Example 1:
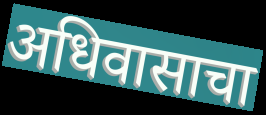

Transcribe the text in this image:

अधिवासाचा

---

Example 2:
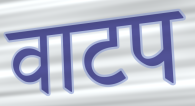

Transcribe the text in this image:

वाटप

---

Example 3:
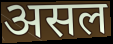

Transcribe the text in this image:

असल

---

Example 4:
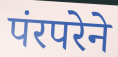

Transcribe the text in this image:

पंरपरेने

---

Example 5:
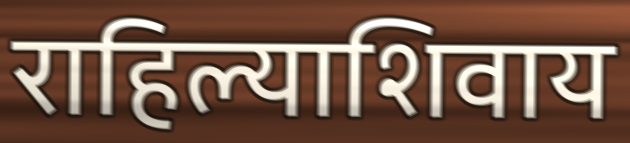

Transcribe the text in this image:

राहिल्याशिवाय